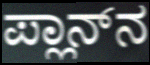
ಪ್ಲಾನ್‌ನ